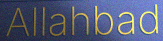
Allahbad